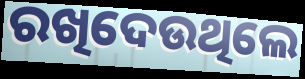
ରଖିଦେଉଥିଲେ